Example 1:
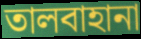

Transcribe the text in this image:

তালবাহানা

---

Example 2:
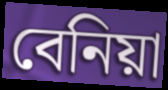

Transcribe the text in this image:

বেনিয়া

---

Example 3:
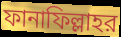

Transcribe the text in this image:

ফানাফিল্লাহর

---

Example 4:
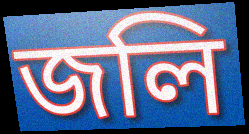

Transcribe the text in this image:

জলি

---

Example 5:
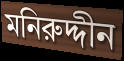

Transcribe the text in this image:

মনিরুদ্দীন